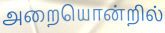
அறையொன்றில்